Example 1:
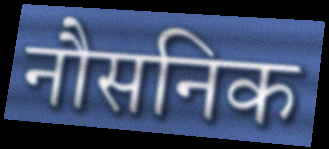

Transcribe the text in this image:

नौसनिक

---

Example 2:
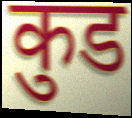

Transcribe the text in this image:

कुड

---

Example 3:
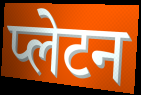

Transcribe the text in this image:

प्लेटन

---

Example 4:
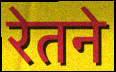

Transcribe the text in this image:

रेतने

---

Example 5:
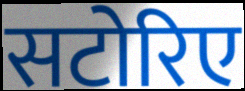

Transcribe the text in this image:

सटोरिए